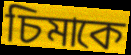
চিমাকে